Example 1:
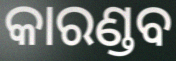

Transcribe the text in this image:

କାରଣ୍ଡବ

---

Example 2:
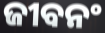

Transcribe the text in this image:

ଜୀବନଂ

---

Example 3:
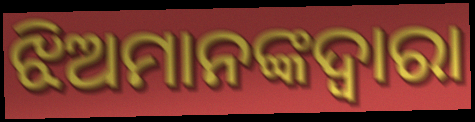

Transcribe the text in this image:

ଝିଅମାନଙ୍କଦ୍ଵାରା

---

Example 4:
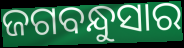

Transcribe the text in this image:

ଜଗବନ୍ଧୁସାର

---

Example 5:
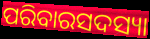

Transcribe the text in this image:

ପରିବାରସଦସ୍ୟା